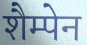
शैम्पेन